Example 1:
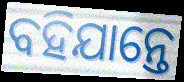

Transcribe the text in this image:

ବହିଯାନ୍ତେ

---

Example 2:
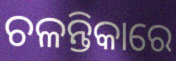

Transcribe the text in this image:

ଚଳନ୍ତିକାରେ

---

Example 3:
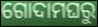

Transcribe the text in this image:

ଗୋଦାମଘରୁ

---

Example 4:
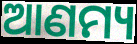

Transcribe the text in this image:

ଆଣମ୍ୟ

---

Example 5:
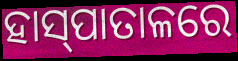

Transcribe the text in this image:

ହାସ୍‍ପାତାଳରେ